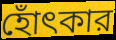
হোঁৎকার